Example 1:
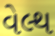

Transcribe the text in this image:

વેલ્થ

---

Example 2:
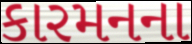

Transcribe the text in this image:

કારમનના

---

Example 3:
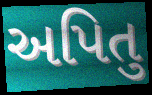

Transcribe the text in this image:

અપિતુ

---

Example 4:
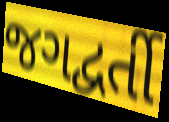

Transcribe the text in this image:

જગદ્વર્તી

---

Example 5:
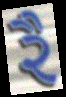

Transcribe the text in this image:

રૈ